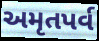
અમૃતપર્વ